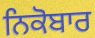
ਨਿਕੋਬਾਰ